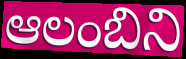
ఆలంబిని